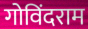
गोविंदराम